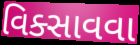
વિક્સાવવા